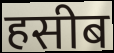
हसीब